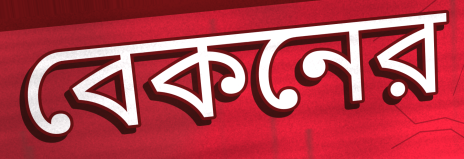
বেকনের